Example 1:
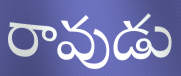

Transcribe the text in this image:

రావుడు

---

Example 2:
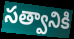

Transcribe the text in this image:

సత్వానికి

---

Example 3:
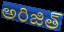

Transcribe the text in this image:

అరిజిత్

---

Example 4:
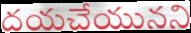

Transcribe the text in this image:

దయచేయునని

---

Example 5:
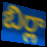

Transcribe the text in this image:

బిర్లా